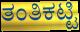
ತಂತಿಕಟ್ಟಿ